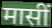
मासीं